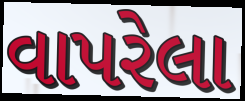
વાપરેલા